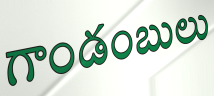
గాండంబులు